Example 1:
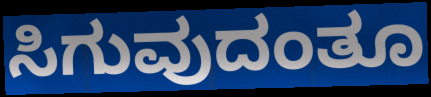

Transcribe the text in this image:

ಸಿಗುವುದಂತೂ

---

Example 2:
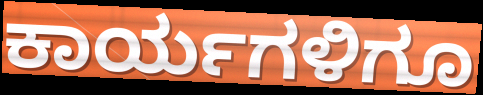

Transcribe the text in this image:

ಕಾರ್ಯಗಳಿಗೂ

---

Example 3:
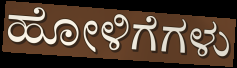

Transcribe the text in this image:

ಹೋಳಿಗೆಗಳು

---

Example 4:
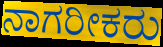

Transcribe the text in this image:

ನಾಗರೀಕರು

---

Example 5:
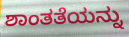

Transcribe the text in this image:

ಶಾಂತತೆಯನ್ನು